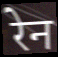
रेन